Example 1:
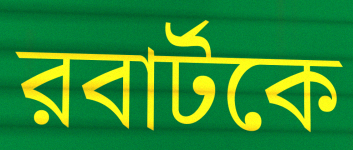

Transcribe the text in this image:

রবার্টকে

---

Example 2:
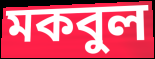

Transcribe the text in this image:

মকবুল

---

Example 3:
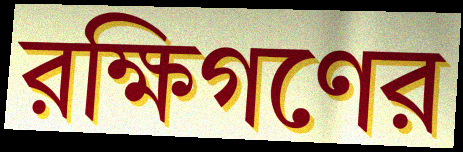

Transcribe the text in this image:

রক্ষিগণের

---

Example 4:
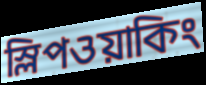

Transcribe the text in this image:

স্লিপওয়াকিং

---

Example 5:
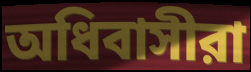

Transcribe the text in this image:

অধিবাসীরা